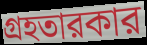
গ্রহতারকার